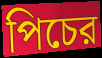
পিচের